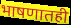
भाषणातही